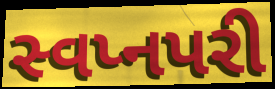
સ્વપ્નપરી